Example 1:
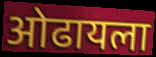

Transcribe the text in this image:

ओढायला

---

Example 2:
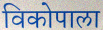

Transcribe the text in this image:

विकोपाला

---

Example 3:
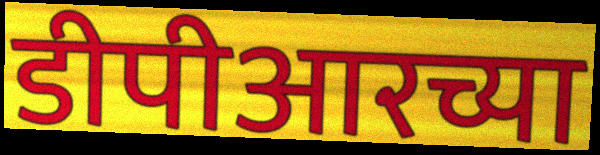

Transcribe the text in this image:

डीपीआरच्या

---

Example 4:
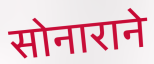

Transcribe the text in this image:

सोनाराने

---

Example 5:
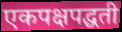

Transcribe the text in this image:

एकपक्षपद्धती